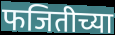
फजितीच्या